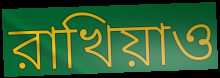
রাখিয়াও